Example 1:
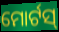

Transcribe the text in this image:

ମୋର୍ଟସ୍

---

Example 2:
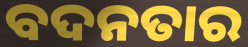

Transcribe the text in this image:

ବଦନତାର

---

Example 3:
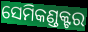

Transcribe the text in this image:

ସେମିକଣ୍ଡକ୍ଟର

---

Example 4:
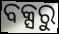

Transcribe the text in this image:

ବକ୍ସରୁ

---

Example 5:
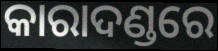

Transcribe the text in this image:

କାରାଦଣ୍ଡରେ